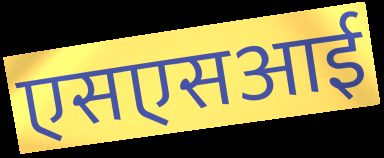
एसएसआई